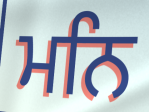
ਮਨਿ